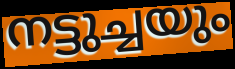
നട്ടുച്ചയും